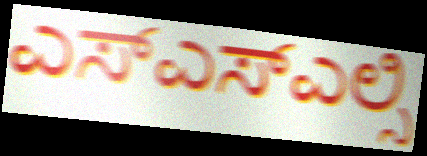
ಎಸ್ಎಸ್ಎಲ್ಸಿ